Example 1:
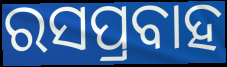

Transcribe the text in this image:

ରସପ୍ରବାହ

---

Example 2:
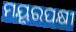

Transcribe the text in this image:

ମୟୂରପକ୍ଷୀ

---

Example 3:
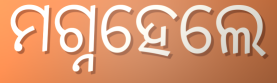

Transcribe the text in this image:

ମଗ୍ନହେଲେ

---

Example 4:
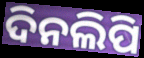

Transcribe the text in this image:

ଦିନଲିପି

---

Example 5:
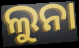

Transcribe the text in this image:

ଲୁନା